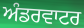
ਅੰਡਰਵਾਟਰ